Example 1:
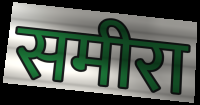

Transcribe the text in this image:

समीरा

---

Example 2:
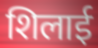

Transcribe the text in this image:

शिलाई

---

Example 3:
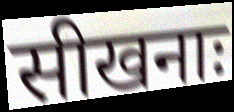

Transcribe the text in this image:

सीखनाः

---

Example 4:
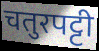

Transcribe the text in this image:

चतुरपट्टी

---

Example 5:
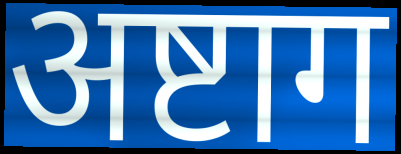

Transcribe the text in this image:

अष्टाग